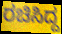
ರಚಿಸಿದ್ದ